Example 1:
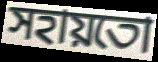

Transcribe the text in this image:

সহায়তো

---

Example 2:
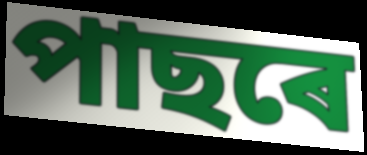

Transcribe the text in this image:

পাছৰে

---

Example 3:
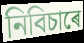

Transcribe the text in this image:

নিবিচাৰে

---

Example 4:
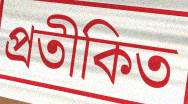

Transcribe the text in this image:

প্ৰতীকিত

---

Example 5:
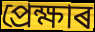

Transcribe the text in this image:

প্ৰেক্ষাৰ